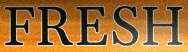
FRESH